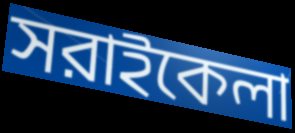
সরাইকেলা